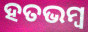
ହତଭମ୍ୱ